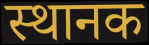
स्थानक